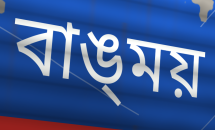
বাঙ্‌ময়